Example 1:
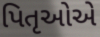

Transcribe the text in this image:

પિતૃઓએ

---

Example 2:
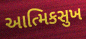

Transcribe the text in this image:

આત્મિકસુખ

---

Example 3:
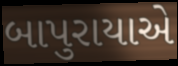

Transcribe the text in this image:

બાપુરાયાએ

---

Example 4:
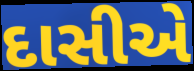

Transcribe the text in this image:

દાસીએ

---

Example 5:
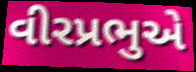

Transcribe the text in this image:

વીરપ્રભુએ